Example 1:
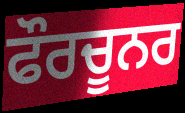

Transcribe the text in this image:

ਫੌਰਚੂਨਰ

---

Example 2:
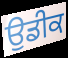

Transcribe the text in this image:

ਉਡੀਕ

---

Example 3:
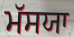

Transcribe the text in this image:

ਮੱਸਯਾ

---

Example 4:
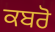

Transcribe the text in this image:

ਕਬਰੋ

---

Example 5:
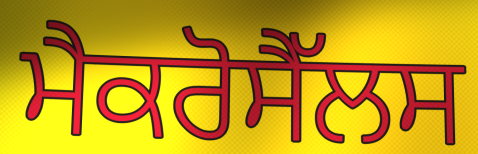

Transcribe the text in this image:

ਮੈਕਰੋਸੈੱਲਸ